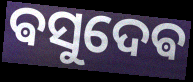
ଵସୁଦେଵ